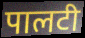
पालटी